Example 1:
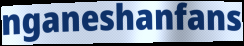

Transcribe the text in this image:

nganeshanfans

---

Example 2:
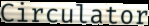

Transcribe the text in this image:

Circulator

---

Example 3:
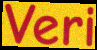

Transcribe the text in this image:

Veri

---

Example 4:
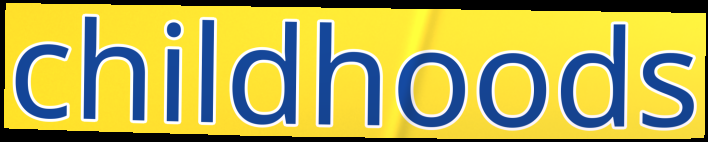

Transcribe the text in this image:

childhoods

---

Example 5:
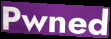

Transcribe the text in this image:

Pwned